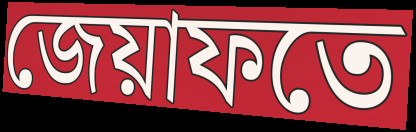
জেয়াফতে